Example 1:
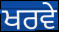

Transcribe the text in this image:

ਖਰਵੇ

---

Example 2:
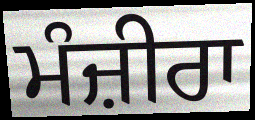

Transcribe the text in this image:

ਮੰਜ਼ੀਰਾ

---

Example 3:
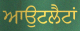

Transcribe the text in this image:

ਆਉਟਲੈਟਾਂ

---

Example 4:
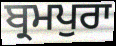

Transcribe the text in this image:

ਬ੍ਰਮਪੁਰਾ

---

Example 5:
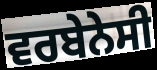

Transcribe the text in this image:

ਵਰਬੇਨੇਸੀ